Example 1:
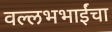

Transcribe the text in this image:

वल्लभभाईंचा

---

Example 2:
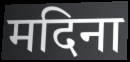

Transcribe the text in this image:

मदिना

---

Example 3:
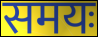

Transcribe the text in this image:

समयः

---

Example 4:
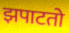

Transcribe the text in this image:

झपाटतो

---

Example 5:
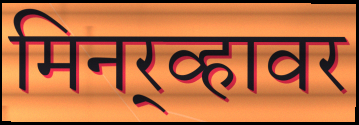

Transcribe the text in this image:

मिनर्व्हावर